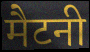
मैटनी